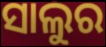
ସାଲୁର